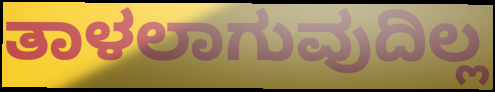
ತಾಳಲಾಗುವುದಿಲ್ಲ